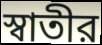
স্বাতীর